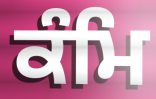
ਕੰਮਿ